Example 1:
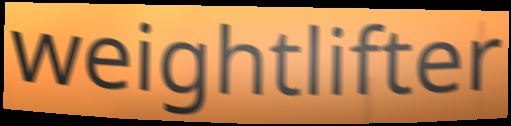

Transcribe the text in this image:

weightlifter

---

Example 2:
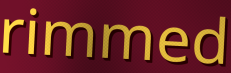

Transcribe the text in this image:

rimmed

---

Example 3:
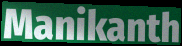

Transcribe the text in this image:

Manikanth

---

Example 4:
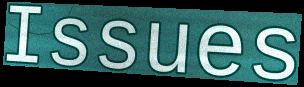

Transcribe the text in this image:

Issues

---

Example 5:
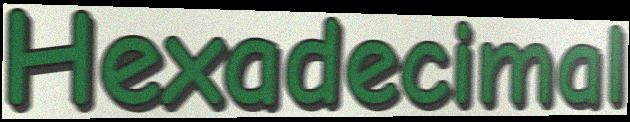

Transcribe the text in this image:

Hexadecimal